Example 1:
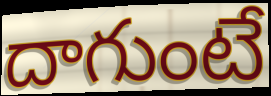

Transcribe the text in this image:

దాగుంటే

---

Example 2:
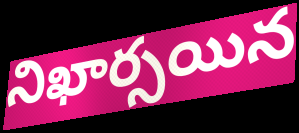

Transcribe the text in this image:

నిఖార్సయిన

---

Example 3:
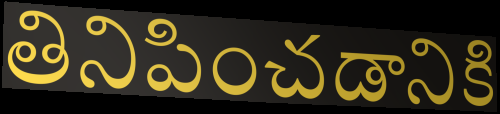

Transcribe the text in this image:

తినిపించడానికి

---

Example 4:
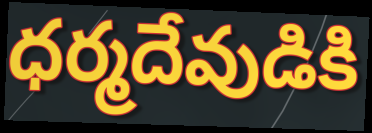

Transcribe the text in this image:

ధర్మదేవుడికి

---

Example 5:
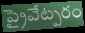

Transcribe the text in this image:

ప్రైవేట్పరం